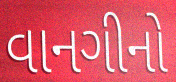
વાનગીનો